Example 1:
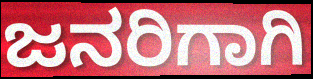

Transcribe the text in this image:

ಜನರಿಗಾಗಿ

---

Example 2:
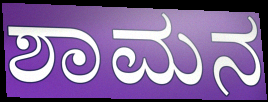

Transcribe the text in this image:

ಶಾಮನ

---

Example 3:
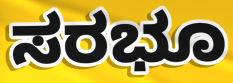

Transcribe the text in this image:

ಸರಭೂ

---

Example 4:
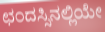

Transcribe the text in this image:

ಛಂದಸ್ಸಿನಲ್ಲಿಯೇ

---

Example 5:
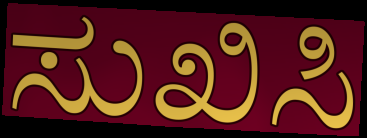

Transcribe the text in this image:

ಸುಖಿಸಿ